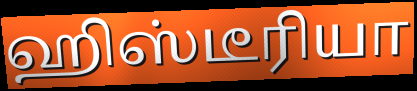
ஹிஸ்டீரியா